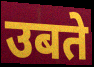
उबते